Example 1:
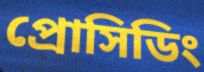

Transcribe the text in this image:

প্রোসিডিং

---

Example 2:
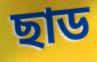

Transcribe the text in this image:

ছাড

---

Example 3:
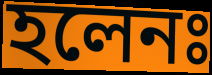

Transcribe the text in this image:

হলেনঃ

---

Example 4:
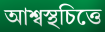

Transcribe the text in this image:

আশ্বস্থচিত্তে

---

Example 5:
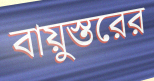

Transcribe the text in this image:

বায়ুস্তরের